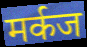
मर्कज